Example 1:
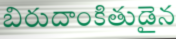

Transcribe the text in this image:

బిరుదాంకితుడైన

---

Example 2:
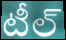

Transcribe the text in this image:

టీల్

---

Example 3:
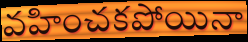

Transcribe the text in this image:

వహించకపోయినా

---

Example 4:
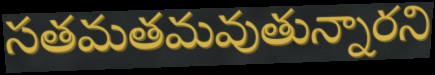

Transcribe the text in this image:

సతమతమవుతున్నారని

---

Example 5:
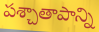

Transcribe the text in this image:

పశ్చాతాపాన్ని